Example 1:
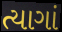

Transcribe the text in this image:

ત્યાગાં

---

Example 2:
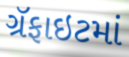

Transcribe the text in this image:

ગ્રૅફાઇટમાં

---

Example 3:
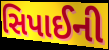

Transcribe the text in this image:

સિપાઈની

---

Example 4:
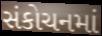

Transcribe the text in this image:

સંકોચનમાં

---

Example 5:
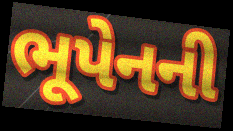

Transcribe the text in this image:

ભૂપેનની